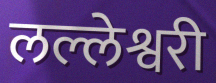
लल्लेश्वरी